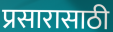
प्रसारासाठी